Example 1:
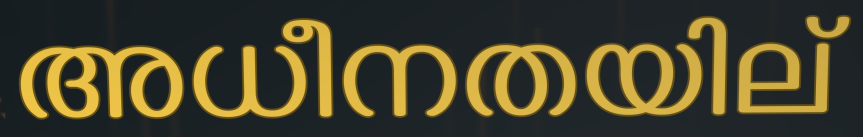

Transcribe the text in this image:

അധീനതയില്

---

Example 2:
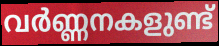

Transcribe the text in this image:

വർണ്ണനകളുണ്ട്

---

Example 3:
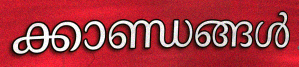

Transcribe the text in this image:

ക്കാണ്ഡങ്ങൾ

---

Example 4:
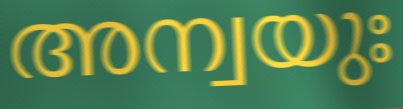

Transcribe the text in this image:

അന്വയുഃ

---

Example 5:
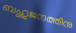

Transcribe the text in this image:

ബഹുജനത്തിനു